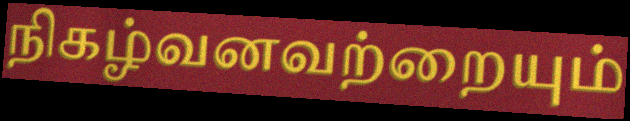
நிகழ்வனவற்றையும்